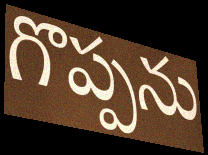
గొప్పను